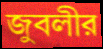
জুবলীর